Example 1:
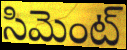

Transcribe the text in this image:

సిమెంట్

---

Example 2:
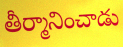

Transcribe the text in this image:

తీర్మానించాడు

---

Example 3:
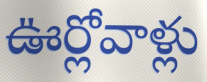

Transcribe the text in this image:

ఊర్లోవాళ్లు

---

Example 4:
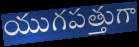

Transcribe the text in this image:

యుగపత్తుగా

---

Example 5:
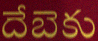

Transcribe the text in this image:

దేబెకు